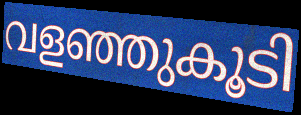
വളഞ്ഞുകൂടി